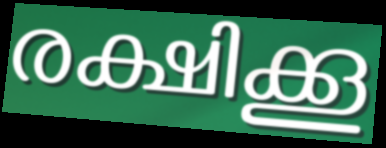
രക്ഷിക്കൂ